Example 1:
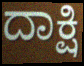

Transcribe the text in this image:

ದಾಕ್ಷಿ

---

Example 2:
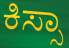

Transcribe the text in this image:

ಕಿಸ್ಸಾ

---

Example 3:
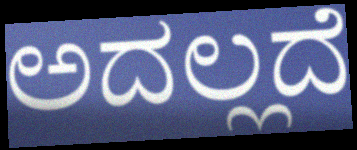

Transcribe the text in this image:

ಅದಲ್ಲದೆ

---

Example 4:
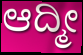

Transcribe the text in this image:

ಆದ್ಮೀ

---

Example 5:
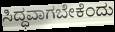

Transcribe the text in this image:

ಸಿದ್ಧವಾಗಬೇಕೆಂದು